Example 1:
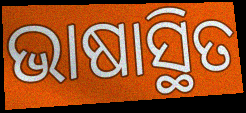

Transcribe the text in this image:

ଭାଷାସ୍ଥିତ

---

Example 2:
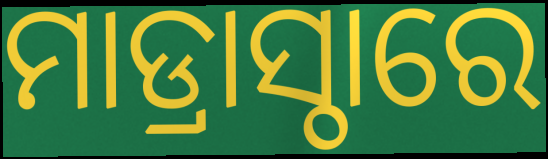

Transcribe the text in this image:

ମାଡ୍ରାସ୍ଠାରେ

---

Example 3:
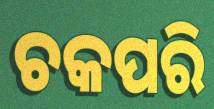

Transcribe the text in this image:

ଚକପରି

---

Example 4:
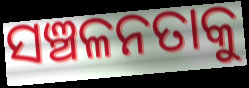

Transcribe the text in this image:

ସଞ୍ଚଳନତାକୁ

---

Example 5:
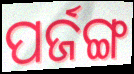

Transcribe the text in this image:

ପର୍ଜଙ୍ଗ